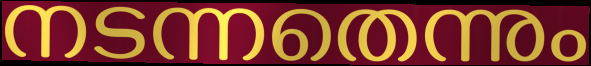
നടന്നതെന്നും